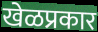
खेळप्रकार